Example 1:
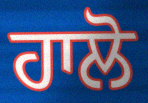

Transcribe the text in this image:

ਹਾਲੋ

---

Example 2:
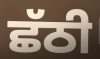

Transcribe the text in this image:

ਛੱਠੀ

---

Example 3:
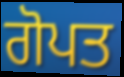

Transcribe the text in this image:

ਗੋਪਤ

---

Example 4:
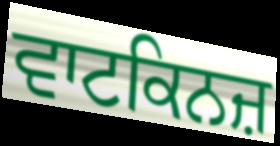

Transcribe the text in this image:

ਵਾਟਕਿਨਜ਼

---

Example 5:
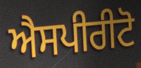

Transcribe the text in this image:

ਐਸਪੀਰੀਟੋ